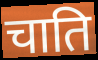
चाति